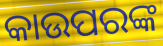
କାଉପରଙ୍କ